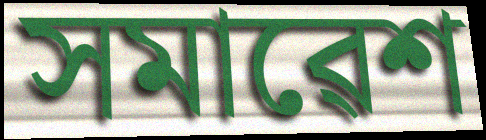
সমাৱেশ